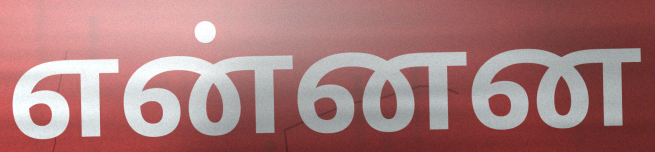
என்னன